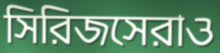
সিরিজসেরাও